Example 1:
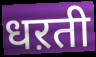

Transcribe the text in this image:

धऱती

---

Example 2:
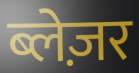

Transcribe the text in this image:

ब्लेज़र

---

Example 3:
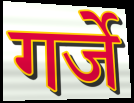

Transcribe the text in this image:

गर्जे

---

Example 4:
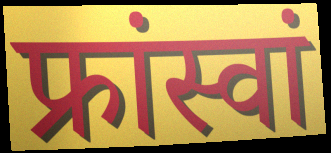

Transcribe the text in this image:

फ्रांस्वां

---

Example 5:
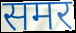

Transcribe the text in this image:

समर